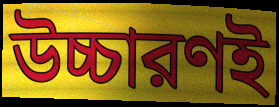
উচ্চারণই